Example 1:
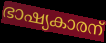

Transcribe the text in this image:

ഭാഷ്യകാരന്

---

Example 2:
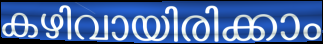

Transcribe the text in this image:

കഴിവായിരിക്കാം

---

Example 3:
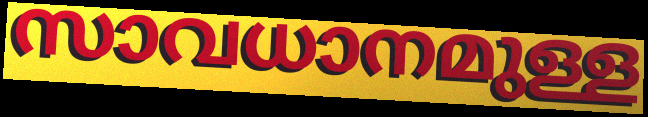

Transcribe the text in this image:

സാവധാനമുള്ള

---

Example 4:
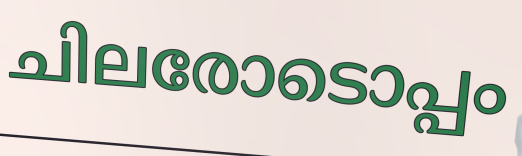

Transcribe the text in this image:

ചിലരോടൊപ്പം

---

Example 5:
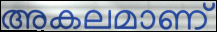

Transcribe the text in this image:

അകലമാണ്